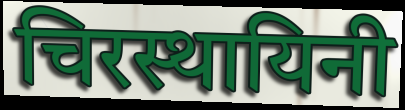
चिरस्थायिनी